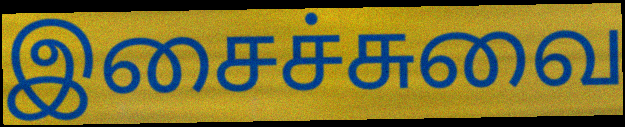
இசைச்சுவை